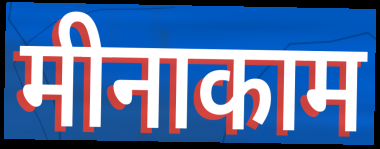
मीनाकाम